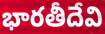
భారతీదేవి